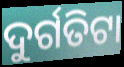
ଦୁର୍ଗତିଟା